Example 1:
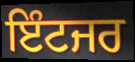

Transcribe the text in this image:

ਇੰਟਜਰ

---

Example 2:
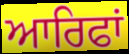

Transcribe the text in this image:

ਆਰਿਫਾਂ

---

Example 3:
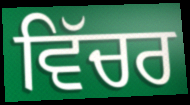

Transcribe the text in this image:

ਵਿੱਚਰ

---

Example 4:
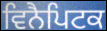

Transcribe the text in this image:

ਵਿਨੈਪਿਟਕ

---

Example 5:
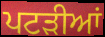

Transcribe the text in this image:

ਪਟਡ਼ੀਆਂ